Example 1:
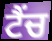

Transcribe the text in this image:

ਟੈਂਚ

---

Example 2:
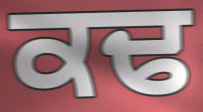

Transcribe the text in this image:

ਕਢ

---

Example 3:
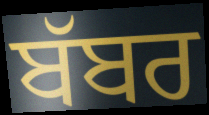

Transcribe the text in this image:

ਬੱਬਰ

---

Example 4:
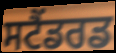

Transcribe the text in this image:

ਸਟੈਂਡਰਡ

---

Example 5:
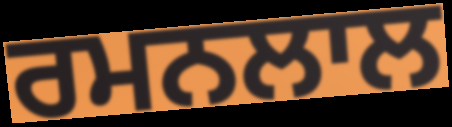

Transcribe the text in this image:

ਰਮਨਲਾਲ